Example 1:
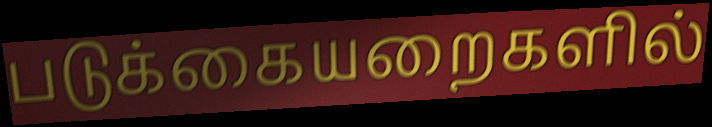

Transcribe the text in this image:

படுக்கையறைகளில்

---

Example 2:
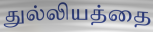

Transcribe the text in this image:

துல்லியத்தை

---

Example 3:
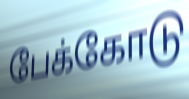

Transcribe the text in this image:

பேக்கோடு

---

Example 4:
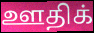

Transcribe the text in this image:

ஊதிக்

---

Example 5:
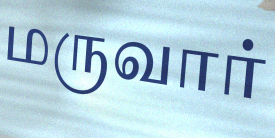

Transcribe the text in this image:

மருவார்